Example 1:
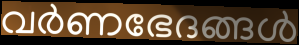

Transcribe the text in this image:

വർണഭേദങ്ങൾ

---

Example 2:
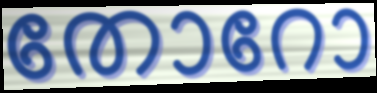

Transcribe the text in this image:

തോറോ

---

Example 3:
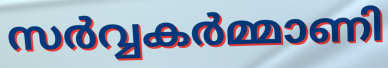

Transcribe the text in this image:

സർവ്വകർമ്മാണി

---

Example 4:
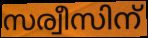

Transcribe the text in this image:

സര്വീസിന്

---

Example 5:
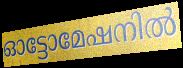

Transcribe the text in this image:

ഓട്ടോമേഷനിൽ